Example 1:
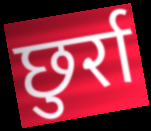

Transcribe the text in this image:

छुर्रा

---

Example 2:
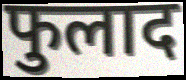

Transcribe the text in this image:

फुलाद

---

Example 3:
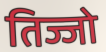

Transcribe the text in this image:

तिज्जो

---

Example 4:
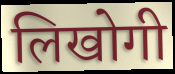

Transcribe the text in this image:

लिखोगी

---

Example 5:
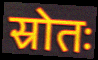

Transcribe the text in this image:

स्रोतः